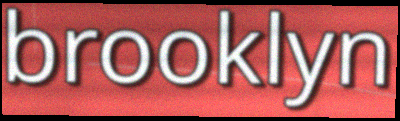
brooklyn